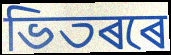
ভিতৰৰে